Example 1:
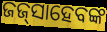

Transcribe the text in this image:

ଜଜ୍‌ସାହେବଙ୍କ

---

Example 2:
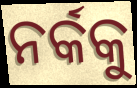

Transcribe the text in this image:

ନର୍କକୁ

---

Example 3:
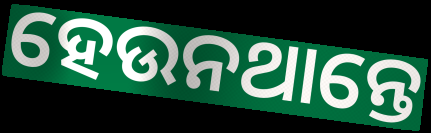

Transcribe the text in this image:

ହେଉନଥାନ୍ତେ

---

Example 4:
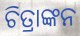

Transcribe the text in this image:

ଚିତ୍ରାଙ୍କନ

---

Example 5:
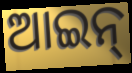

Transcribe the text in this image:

ଆଇନ୍